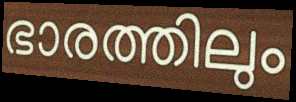
ഭാരത്തിലും